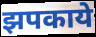
झपकाये